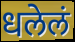
धलेलं